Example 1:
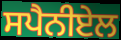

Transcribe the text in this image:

ਸਪੈਨੀਏਲ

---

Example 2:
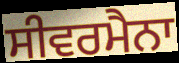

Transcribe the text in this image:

ਸੀਵਰਮੈਨਾ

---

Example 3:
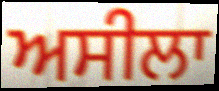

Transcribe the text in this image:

ਅਸੀਲਾ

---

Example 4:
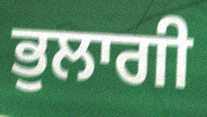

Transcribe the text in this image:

ਭੁਲਾਗੀ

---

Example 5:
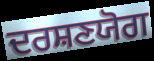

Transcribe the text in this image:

ਦਰਸ਼ਣਯੋਗ